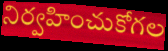
నిర్వహించుకోగల